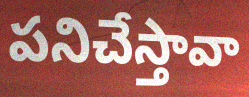
పనిచేస్తావా